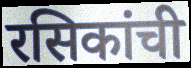
रसिकांची